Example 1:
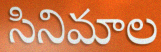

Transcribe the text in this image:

సినిమాల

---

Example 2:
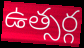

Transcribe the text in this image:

ఉత్సర్గ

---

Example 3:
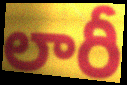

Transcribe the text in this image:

లారీ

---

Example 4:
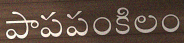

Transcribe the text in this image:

పాపపంకిలం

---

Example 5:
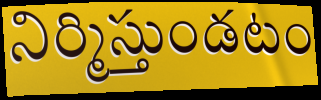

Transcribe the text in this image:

నిర్మిస్తుండటం